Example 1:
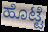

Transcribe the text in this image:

ಹೊಟ್ಟೆ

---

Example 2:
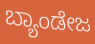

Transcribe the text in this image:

ಬ್ಯಾಂಡೇಜ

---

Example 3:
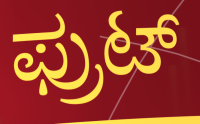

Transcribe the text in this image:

ಫ್ರುಟ್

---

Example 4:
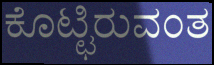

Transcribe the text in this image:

ಕೊಟ್ಟಿರುವಂತ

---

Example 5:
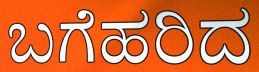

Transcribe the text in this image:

ಬಗೆಹರಿದ